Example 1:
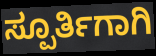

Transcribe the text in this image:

ಸ್ಪೂರ್ತಿಗಾಗಿ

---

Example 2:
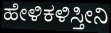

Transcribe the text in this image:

ಹೇಳಿಕಳಿಸ್ತೀನಿ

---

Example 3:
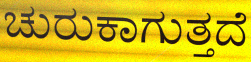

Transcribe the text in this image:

ಚುರುಕಾಗುತ್ತದೆ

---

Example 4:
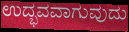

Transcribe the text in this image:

ಉದ್ಭವವಾಗುವುದು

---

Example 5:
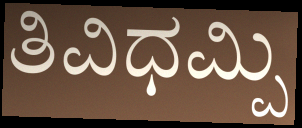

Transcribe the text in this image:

ತಿವಿಧಮ್ಪಿ